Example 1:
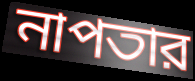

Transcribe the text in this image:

নাপতার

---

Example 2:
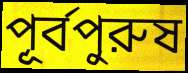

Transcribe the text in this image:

পূর্বপুরুষ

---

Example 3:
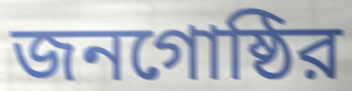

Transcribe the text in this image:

জনগোষ্ঠির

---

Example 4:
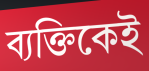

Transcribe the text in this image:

ব্যক্তিকেই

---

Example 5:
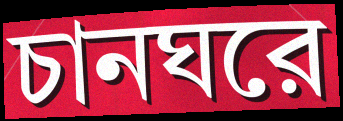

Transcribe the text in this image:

চানঘরে